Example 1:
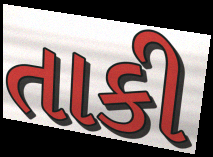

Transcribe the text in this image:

તાકી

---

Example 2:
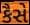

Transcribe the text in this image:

કૈસે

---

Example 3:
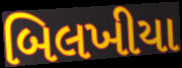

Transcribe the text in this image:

બિલખીયા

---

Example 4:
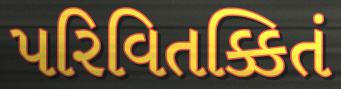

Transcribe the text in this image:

પરિવિતક્કિતં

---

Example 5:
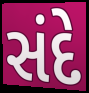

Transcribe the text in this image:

સંદે